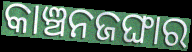
କାଞ୍ଚନଜଙ୍ଘାର